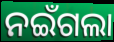
ନଇଁଗଲା